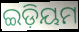
ଇଡ଼ିୟମ